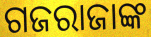
ଗଜରାଜାଙ୍କ